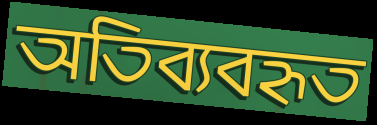
অতিব্যবহৃত